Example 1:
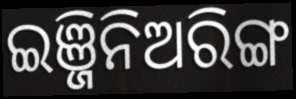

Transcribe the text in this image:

ଇଞ୍ଜିନିଅରିଙ୍ଗ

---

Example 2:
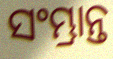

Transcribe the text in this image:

ସଂମ୍ଭ୍ରାନ୍ତ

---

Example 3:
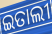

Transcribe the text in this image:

ଇତାଲୀ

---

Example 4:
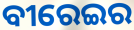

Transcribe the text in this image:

ବୀରେଇର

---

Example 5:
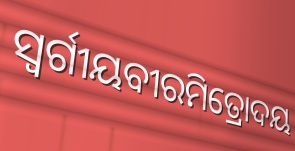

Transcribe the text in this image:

ସ୍ୱର୍ଗୀୟବୀରମିତ୍ରୋଦୟ